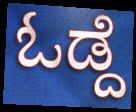
ಓಡ್ದೆ